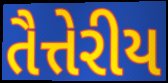
તૈત્તેરીય